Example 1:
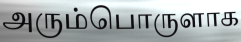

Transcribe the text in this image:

அரும்பொருளாக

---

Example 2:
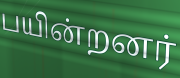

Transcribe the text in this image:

பயின்றனர்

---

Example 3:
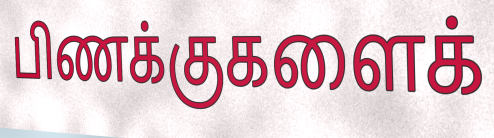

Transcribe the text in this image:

பிணக்குகளைக்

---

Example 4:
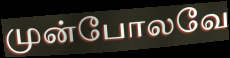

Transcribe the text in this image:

முன்போலவே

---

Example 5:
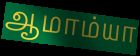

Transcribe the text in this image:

ஆமாம்யா